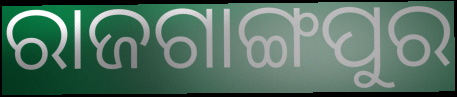
ରାଜଗାଙ୍ଗପୁର